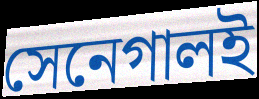
সেনেগালই